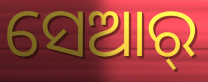
ସେଆର୍